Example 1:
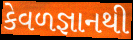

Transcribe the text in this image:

કેવળજ્ઞાનથી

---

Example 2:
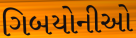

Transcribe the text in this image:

ગિબયોનીઓ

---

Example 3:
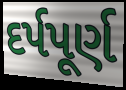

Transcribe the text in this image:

દર્પપૂર્ણ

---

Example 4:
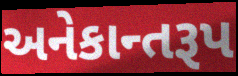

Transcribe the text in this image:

અનેકાન્તરૂપ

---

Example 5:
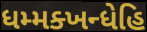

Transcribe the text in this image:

ધમ્મક્ખન્ધેહિ